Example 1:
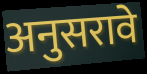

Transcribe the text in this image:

अनुसरावे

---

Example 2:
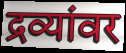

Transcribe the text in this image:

द्रव्यांवर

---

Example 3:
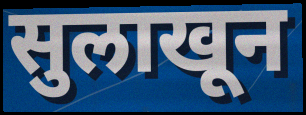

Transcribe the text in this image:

सुलाखून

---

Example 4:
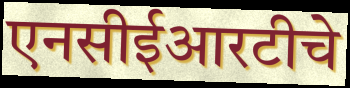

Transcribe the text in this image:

एनसीईआरटीचे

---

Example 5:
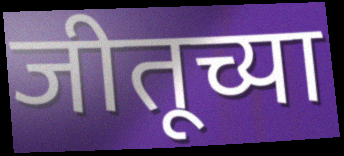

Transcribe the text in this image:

जीतूच्या